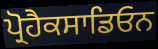
ਪ੍ਰੋਹੈਕਸਾਡਿਓਨ